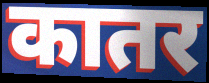
कातर